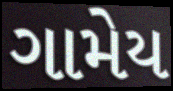
ગામેય